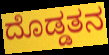
ದೊಡ್ಡತನ